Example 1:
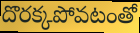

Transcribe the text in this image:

దొరక్కపోవటంతో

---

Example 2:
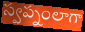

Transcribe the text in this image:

స్వప్నంలాగా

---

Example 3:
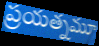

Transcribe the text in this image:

ప్రయత్నమూ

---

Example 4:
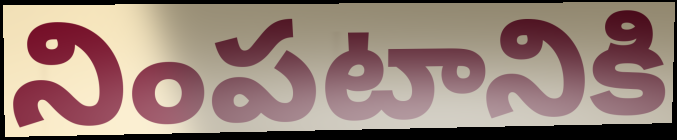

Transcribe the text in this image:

నింపటానికి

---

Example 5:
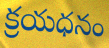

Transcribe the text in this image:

క్రయధనం